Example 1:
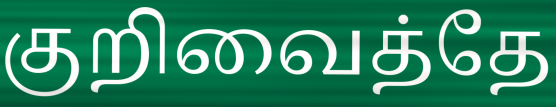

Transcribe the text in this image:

குறிவைத்தே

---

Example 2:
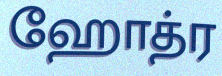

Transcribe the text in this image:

ஹோத்ர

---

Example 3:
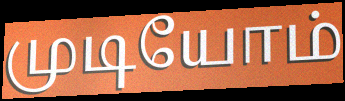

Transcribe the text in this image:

முடியோம்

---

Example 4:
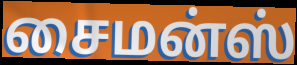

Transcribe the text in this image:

சைமன்ஸ்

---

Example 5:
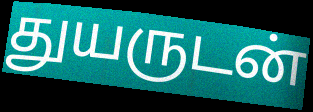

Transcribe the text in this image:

துயருடன்